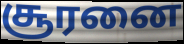
சூரனை